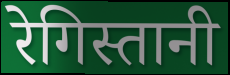
रेगिस्तानी